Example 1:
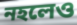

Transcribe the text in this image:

নহলেও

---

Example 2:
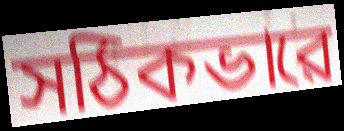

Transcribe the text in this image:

সঠিকভাৱে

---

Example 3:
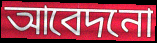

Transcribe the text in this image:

আবেদনো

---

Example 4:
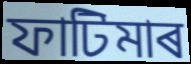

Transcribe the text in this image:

ফাটিমাৰ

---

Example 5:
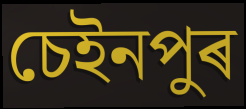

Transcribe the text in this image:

চেইনপুৰ